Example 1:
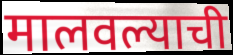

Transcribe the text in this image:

मालवल्याची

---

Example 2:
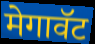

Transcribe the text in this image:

मेगावॅट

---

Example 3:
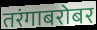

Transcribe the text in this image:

तरंगाबरोबर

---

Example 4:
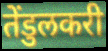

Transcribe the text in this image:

तेंडुलकरी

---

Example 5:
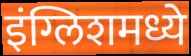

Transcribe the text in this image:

इंग्लिशमध्ये